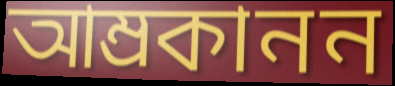
আম্রকানন